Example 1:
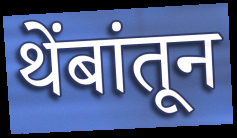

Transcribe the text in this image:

थेंबांतून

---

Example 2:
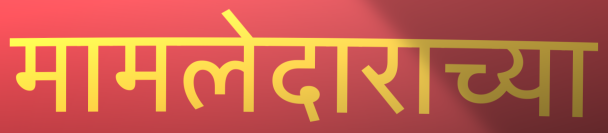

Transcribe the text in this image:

मामलेदाराच्या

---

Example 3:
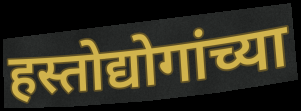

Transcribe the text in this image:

हस्तोद्योगांच्या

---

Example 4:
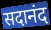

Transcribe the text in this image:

सदानंद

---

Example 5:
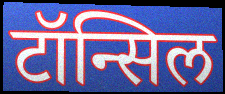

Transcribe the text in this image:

टॉन्सिल